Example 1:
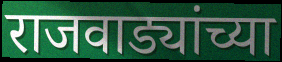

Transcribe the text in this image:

राजवाड्यांच्या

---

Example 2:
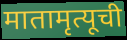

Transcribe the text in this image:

मातामृत्यूची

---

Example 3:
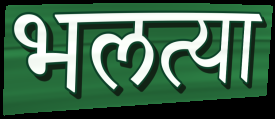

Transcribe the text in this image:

भलत्या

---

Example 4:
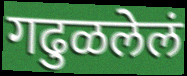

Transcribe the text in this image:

गढुळलेलं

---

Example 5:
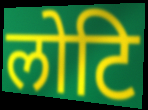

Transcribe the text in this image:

लोटि